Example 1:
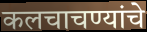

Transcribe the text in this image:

कलचाचण्यांचे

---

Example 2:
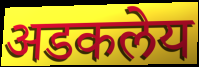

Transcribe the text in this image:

अडकलेय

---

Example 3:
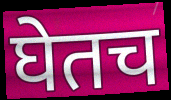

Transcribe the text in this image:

घेतच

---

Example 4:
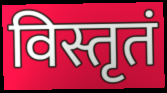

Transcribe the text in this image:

विस्तृतं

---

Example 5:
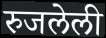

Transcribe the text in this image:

रुजलेली